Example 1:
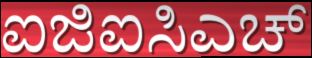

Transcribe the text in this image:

ಐಜಿಐಸಿಎಚ್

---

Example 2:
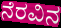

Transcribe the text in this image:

ನೆರವಿನ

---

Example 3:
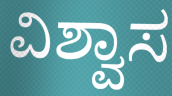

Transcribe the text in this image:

ವಿಶ್ವಾಸ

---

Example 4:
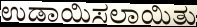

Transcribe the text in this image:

ಉಡಾಯಿಸಲಾಯಿತು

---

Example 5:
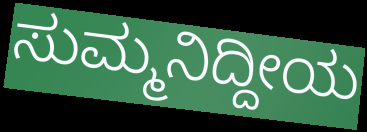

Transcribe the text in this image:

ಸುಮ್ಮನಿದ್ದೀಯ